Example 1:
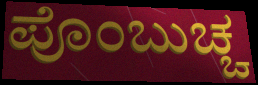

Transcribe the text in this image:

ಪೊಂಬುಚ್ಚ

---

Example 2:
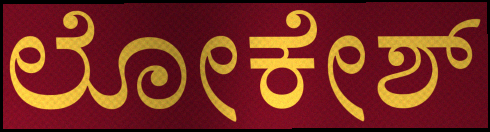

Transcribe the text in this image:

ಲೋಕೇಶ್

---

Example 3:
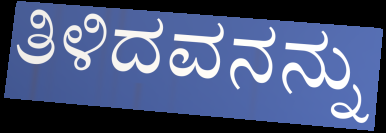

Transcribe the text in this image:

ತಿಳಿದವನನ್ನು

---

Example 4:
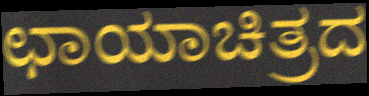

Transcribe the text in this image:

ಛಾಯಾಚಿತ್ರದ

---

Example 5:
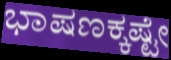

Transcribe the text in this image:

ಭಾಷಣಕ್ಕಷ್ಟೇ